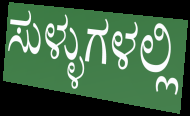
ಸುಳ್ಳುಗಳಲ್ಲಿ